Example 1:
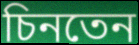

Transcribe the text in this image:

চিনতেন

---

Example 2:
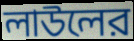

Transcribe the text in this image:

লাউলের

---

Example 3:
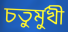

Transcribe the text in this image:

চতুর্মুখী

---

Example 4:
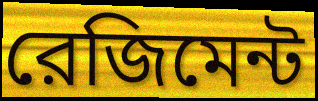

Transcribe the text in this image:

রেজিমেন্ট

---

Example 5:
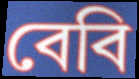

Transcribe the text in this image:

বেবি